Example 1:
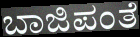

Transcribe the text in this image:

ಬಾಜಿಪಂತೆ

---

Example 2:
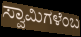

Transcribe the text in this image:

ಸ್ವಾಮಿಗಳೆಂಬ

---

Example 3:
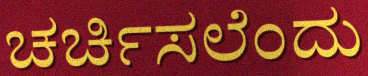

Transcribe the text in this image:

ಚರ್ಚಿಸಲೆಂದು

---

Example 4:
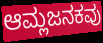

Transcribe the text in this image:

ಆಮ್ಲಜನಕವು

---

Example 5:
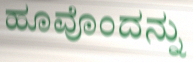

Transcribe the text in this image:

ಹೂವೊಂದನ್ನು